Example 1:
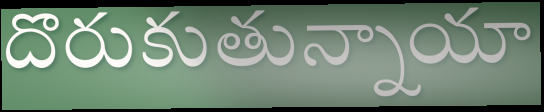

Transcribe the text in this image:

దొరుకుతున్నాయా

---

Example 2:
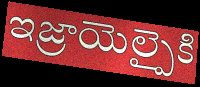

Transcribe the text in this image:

ఇజ్రాయెల్పైకి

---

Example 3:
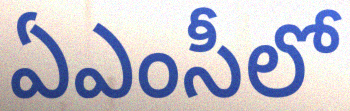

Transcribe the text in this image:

ఏఎంసీలో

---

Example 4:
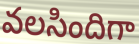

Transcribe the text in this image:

వలసిందిగా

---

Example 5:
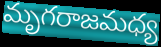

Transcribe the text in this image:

మృగరాజమధ్య